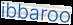
ibbaroo